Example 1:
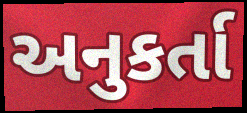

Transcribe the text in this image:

અનુકર્તા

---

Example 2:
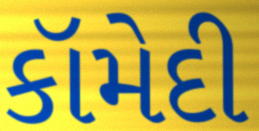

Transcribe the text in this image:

કૉમેદી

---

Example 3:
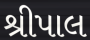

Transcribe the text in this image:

શ્રીપાલ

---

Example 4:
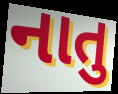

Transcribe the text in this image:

નાતુ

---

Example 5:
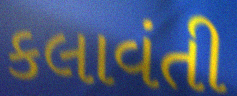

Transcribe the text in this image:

કલાવંતી